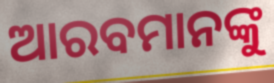
ଆରବମାନଙ୍କୁ